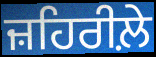
ਜ਼ਹਿਰੀਲ਼ੇ